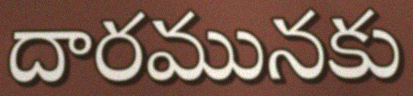
దారమునకు